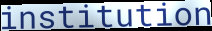
institution